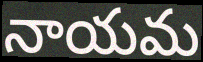
నాయమ